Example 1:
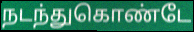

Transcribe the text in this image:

நடந்துகொண்டே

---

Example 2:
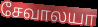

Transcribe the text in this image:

சேவாலயா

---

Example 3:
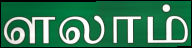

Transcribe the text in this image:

ளலாம்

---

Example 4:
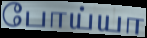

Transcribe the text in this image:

போய்யா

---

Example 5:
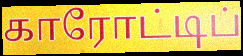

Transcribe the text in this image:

காரோட்டிப்